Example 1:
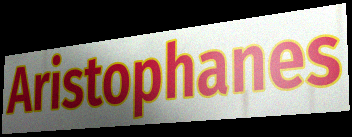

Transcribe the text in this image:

Aristophanes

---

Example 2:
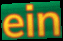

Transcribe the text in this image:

ein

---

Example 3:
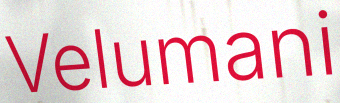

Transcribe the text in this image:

Velumani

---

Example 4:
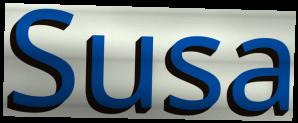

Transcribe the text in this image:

Susa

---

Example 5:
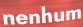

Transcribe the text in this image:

nenhum